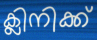
ക്ലിനിക്ക്